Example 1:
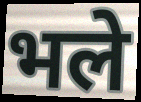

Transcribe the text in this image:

भले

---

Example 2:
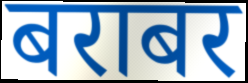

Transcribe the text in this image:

बराबर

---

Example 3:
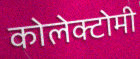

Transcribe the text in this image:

कोलेक्टोमी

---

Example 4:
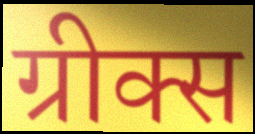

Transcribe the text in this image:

ग्रीक्स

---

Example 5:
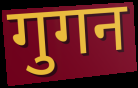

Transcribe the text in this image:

गुगन